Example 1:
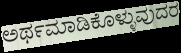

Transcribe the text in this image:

ಅರ್ಥಮಾಡಿಕೊಳ್ಳುವುದರ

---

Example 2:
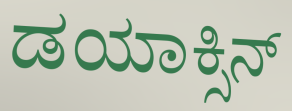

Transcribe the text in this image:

ಡಯಾಕ್ಸಿನ್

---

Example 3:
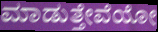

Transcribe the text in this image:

ಮಾಡುತ್ತೇವೆಯೋ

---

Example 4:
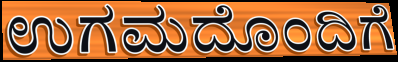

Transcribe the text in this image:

ಉಗಮದೊಂದಿಗೆ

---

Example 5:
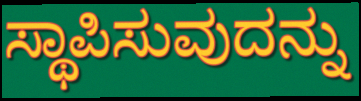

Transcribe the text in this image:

ಸ್ಥಾಪಿಸುವುದನ್ನು